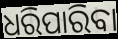
ଧରିପାରିବା